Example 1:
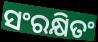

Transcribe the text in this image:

ସଂରକ୍ଷିତଂ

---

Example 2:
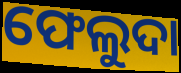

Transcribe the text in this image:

ଫେଲୁଦା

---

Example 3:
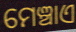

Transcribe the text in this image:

ମେଞ୍ଚାଏ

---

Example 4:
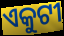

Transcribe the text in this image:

ଏକୁଟୀ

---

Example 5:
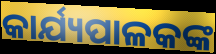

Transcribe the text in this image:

କାର୍ଯ୍ୟପାଳକଙ୍କ